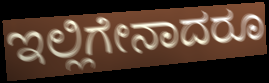
ಇಲ್ಲಿಗೇನಾದರೂ